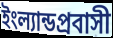
ইংল্যান্ডপ্রবাসী